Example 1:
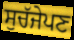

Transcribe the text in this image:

ਸੁਚੱਜੇਪਣ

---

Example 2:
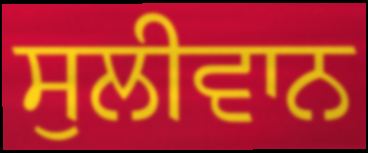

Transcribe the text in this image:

ਸੁਲੀਵਾਨ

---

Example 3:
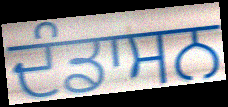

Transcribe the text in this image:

ਦੰਡਾਸਨ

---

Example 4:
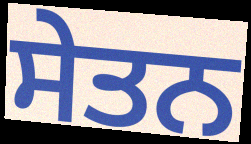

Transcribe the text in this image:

ਸੇਤਨ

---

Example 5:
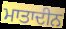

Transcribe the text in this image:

ਮਾਤਾਦੀਨ